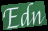
Edn